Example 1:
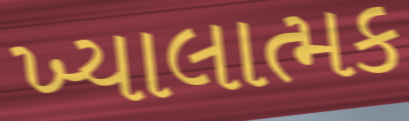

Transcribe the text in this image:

ખ્યાલાત્મક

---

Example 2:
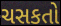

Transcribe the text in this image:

ચસકતો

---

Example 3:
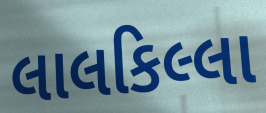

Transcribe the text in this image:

લાલકિલ્લા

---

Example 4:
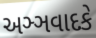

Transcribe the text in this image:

અઞ્ઞવાદકે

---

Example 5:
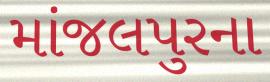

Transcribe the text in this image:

માંજલપુરના